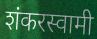
शंकरस्वामी